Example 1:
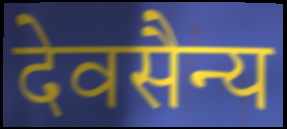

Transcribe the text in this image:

देवसैन्य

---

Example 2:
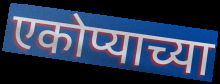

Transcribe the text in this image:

एकोप्याच्या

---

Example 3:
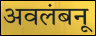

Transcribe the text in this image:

अवलंबनू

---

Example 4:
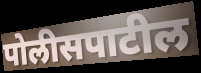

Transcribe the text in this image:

पोलीसपाटील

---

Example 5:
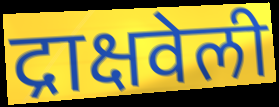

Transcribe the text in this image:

द्राक्षवेली